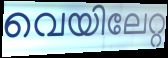
വെയിലേറ്റ